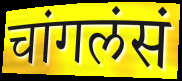
चांगलंसं